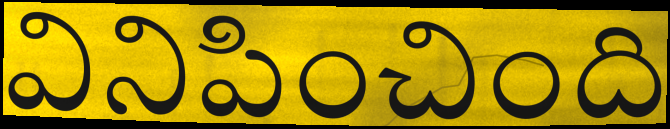
వినిపించింది